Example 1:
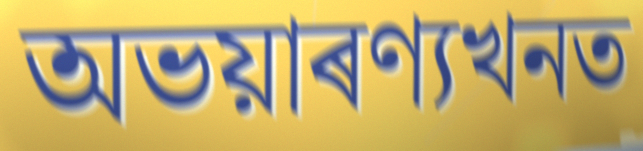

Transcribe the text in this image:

অভয়াৰণ্যখনত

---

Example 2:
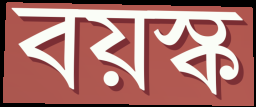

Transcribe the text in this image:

বয়স্ক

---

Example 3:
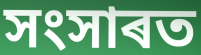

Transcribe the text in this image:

সংসাৰত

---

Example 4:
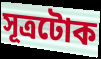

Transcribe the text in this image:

সূত্ৰটোক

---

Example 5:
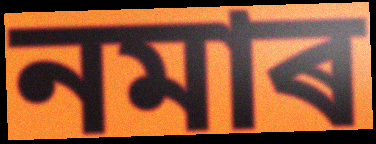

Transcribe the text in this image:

নমাৰ